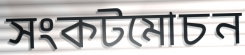
সংকটমোচন